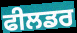
ਫੀਲਡਰ